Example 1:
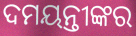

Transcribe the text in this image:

ଦମୟନ୍ତୀଙ୍କର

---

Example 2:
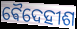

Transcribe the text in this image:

ଵୈଦେହୀଶ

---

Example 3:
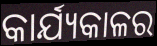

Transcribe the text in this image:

କାର୍ଯ୍ୟକାଳର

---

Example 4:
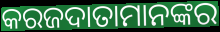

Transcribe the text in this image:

କରଜଦାତାମାନଙ୍କର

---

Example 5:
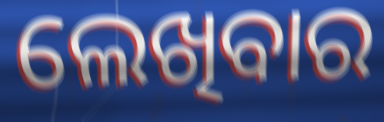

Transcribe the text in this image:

ଲେଖିବାର